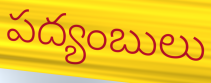
పద్యంబులు